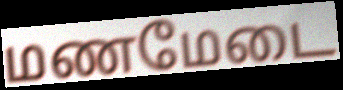
மணமேடை